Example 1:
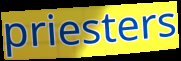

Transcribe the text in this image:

priesters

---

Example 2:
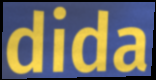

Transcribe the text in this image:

dida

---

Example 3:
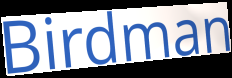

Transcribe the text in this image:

Birdman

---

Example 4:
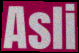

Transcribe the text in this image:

Asli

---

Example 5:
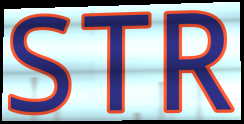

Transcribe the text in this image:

STR